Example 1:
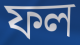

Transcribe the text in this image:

ফল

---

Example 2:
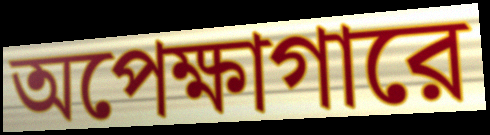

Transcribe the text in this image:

অপেক্ষাগারে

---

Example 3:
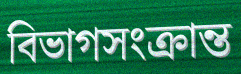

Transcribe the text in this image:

বিভাগসংক্রান্ত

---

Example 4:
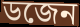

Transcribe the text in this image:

ডজেন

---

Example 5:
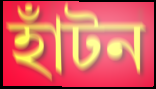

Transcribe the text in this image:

হাঁটন